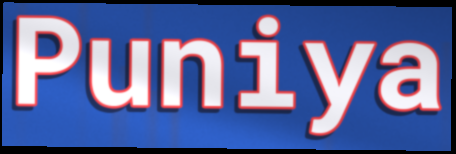
Puniya